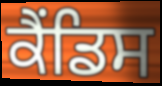
ਕੈਂਡਿਸ